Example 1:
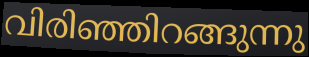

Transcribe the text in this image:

വിരിഞ്ഞിറങ്ങുന്നു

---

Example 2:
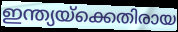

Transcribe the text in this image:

ഇന്ത്യയ്ക്കെതിരായ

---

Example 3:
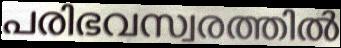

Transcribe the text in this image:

പരിഭവസ്വരത്തിൽ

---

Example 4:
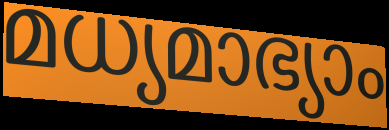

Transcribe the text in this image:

മധ്യമാഭ്യാം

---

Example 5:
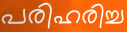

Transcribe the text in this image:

പരിഹരിച്ച